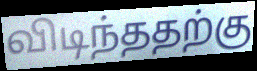
விடிந்ததற்கு